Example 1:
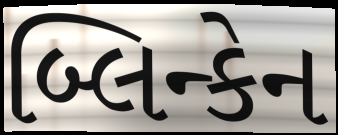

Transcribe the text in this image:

બ્લિન્કેન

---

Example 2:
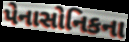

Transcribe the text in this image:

પેનાસોનિકના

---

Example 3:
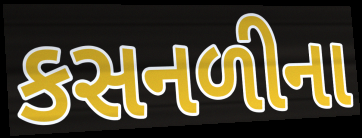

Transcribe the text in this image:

કસનળીના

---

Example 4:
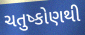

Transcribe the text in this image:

ચતુષ્કોણથી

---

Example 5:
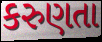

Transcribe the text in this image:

કરુણતા